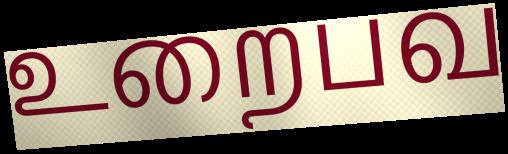
உறைபவ